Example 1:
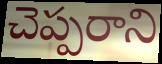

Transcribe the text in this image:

చెప్పరాని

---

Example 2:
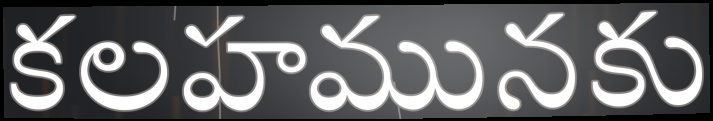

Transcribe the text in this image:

కలహమునకు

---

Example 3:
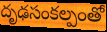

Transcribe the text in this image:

దృఢసంకల్పంతో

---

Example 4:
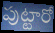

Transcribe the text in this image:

పుట్టారో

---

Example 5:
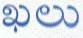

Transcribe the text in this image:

ఖలు